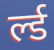
र्ल्ड